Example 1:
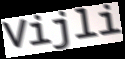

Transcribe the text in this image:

Vijli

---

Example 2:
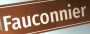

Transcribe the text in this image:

Fauconnier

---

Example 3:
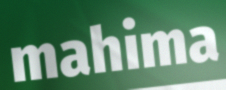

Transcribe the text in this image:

mahima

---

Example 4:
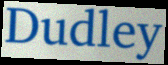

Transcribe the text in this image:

Dudley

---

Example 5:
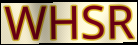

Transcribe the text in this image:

WHSR